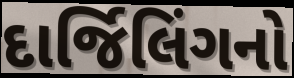
દાર્જિલિંગનો